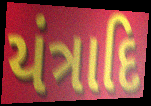
યંત્રાદિ